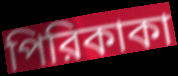
পিরিকাকা